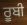
ਰੂਬੀ